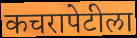
कचरापेटीला